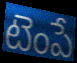
టెంపే